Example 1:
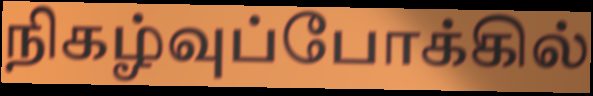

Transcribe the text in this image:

நிகழ்வுப்போக்கில்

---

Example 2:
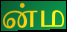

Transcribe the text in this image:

ன்ம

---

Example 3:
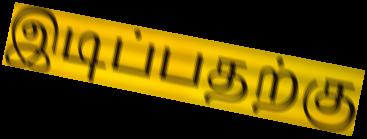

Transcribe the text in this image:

இடிப்பதற்கு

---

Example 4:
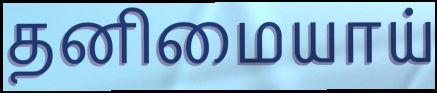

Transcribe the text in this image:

தனிமையாய்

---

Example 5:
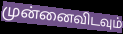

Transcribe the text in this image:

முன்னைவிடவும்